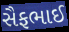
સૈફભાઈ